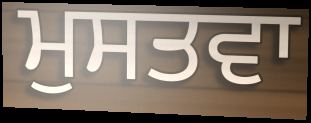
ਮੁਸਤਵਾ